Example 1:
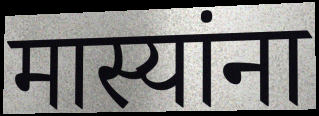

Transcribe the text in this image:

मास्यांना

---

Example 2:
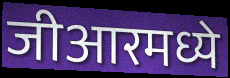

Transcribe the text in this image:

जीआरमध्ये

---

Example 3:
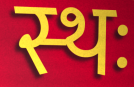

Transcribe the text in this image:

स्थः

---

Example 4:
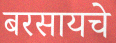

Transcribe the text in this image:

बरसायचे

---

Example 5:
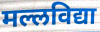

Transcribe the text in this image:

मल्लविद्या